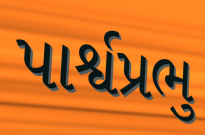
પાર્શ્વપ્રભુ